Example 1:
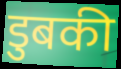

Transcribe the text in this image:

डुबकी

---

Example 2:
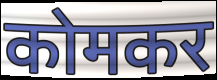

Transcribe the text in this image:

कोमकर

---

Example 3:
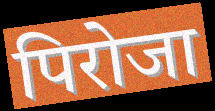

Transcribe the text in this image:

पिरोजा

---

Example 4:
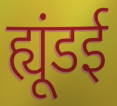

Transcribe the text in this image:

ह्यूंडई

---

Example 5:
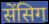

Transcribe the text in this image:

सेंसिग